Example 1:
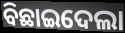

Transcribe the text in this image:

ବିଛାଇଦେଲା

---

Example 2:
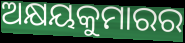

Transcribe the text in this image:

ଅକ୍ଷୟକୁମାରର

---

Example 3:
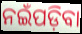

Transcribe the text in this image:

ନଇଁପଡ଼ିବା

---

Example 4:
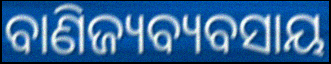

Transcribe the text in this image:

ବାଣିଜ୍ୟବ୍ୟବସାୟ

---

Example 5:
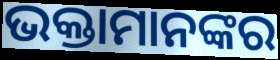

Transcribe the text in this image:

ଭକ୍ତାମାନଙ୍କର